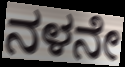
ನಳನೇ